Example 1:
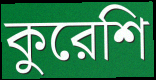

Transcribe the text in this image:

কুরেশি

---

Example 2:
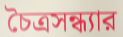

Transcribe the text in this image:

চৈত্রসন্ধ্যার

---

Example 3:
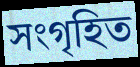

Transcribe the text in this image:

সংগৃহিত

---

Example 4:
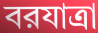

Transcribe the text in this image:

বরযাত্রা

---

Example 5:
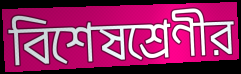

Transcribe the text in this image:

বিশেষশ্রেণীর